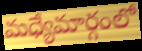
మధ్యేమార్గంలో